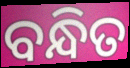
ବନ୍ଧିତ